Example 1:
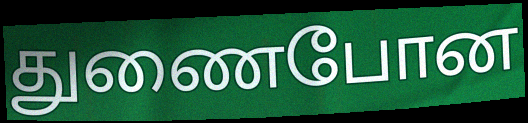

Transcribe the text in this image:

துணைபோன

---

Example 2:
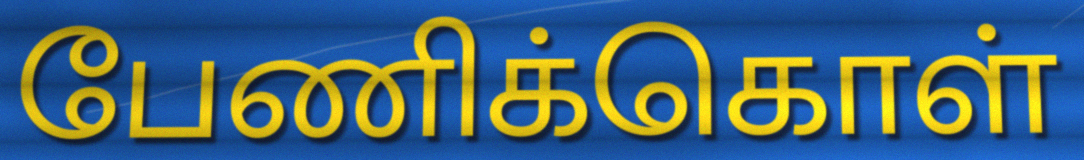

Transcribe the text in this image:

பேணிக்கொள்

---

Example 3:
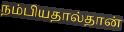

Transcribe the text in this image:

நம்பியதால்தான்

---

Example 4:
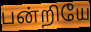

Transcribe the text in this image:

பன்றியே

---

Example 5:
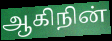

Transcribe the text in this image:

ஆகிநின்